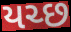
યચ્છ